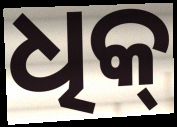
ଧିକ୍